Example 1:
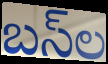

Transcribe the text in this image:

బస్‌ల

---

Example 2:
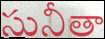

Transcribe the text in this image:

సునీతా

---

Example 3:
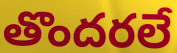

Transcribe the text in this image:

తొందరలే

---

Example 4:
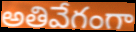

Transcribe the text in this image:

అతివేగంగా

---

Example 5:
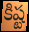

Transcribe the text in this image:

కిష్ట